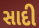
સાદી